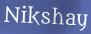
Nikshay